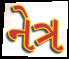
નેત્ર